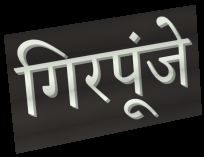
गिरपूंजे